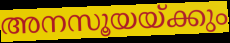
അനസൂയയ്ക്കും